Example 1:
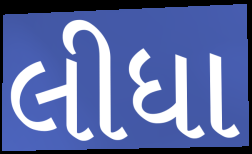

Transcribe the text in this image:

લીધા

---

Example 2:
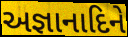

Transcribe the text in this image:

અજ્ઞાનાદિને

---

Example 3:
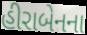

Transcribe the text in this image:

હીરાબેનના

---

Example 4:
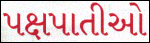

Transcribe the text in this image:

પક્ષપાતીઓ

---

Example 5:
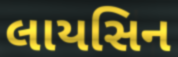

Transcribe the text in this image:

લાયસિન